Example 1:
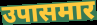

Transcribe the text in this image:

उपासमार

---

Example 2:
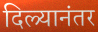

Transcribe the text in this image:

दिल्यानंतर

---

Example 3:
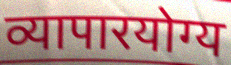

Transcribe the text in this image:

व्यापारयोग्य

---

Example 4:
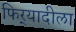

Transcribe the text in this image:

फिर्यादीला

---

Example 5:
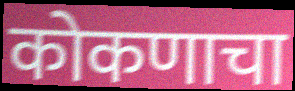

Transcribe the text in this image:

कोकणाचा